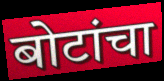
बोटांचा